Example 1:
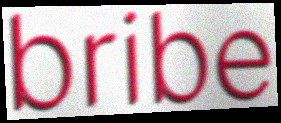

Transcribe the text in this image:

bribe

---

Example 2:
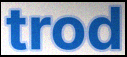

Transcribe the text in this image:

trod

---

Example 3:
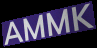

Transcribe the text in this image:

AMMK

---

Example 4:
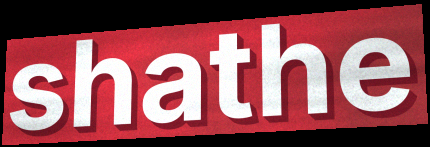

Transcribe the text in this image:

shathe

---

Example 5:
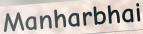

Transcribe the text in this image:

Manharbhai